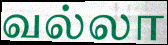
வல்லா